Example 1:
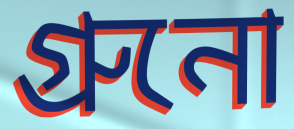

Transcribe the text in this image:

গ্রুনো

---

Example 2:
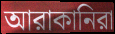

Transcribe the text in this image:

আরাকানিরা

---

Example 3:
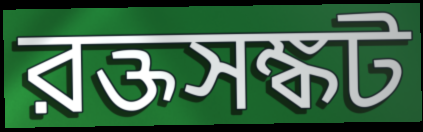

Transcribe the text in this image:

রক্তসঙ্কট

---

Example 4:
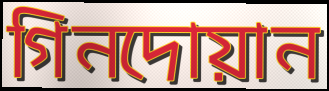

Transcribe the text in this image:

গিনদোয়ান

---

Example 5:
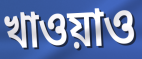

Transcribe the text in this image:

খাওয়াও